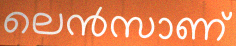
ലെൻസാണ്